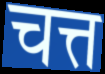
चत्त